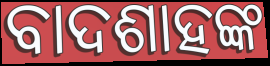
ବାଦଶାହଙ୍କ